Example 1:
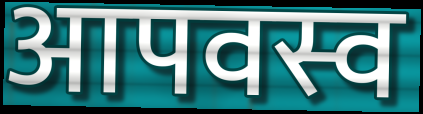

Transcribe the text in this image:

आपवस्व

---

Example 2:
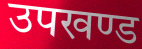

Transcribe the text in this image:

उपखण्ड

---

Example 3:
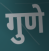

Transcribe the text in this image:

गुणे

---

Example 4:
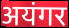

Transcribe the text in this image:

अयंगर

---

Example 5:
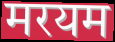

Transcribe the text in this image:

मरयम